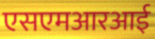
एसएमआरआई